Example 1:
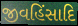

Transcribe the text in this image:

જીવહિંસાદિ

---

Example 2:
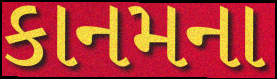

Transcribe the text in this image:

કાનમના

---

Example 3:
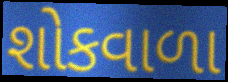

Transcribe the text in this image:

શોકવાળા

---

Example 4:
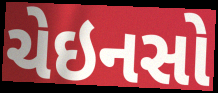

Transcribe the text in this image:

ચેઇનસો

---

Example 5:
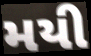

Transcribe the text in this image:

મયી